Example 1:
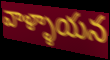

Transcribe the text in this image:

వాళ్ళాయన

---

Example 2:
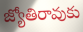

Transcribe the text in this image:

జ్యోతిరావుకు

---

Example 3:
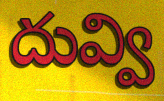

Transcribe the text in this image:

దువ్వి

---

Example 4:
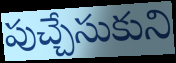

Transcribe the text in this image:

పుచ్చేసుకుని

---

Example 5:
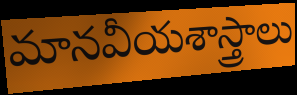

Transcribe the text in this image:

మానవీయశాస్త్రాలు